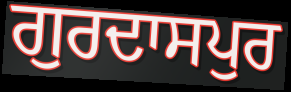
ਗੁਰਦਾਸਪੁਰ